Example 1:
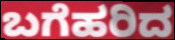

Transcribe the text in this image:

ಬಗೆಹರಿದ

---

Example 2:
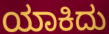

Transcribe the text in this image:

ಯಾಕಿದು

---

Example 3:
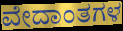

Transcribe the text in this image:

ವೇದಾಂತಗಳ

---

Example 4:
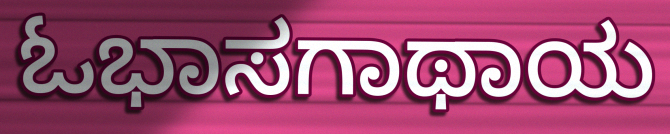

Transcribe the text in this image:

ಓಭಾಸಗಾಥಾಯ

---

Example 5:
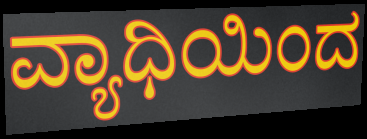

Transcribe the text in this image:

ವ್ಯಾಧಿಯಿಂದ